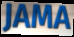
JAMA